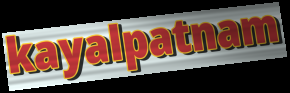
kayalpatnam